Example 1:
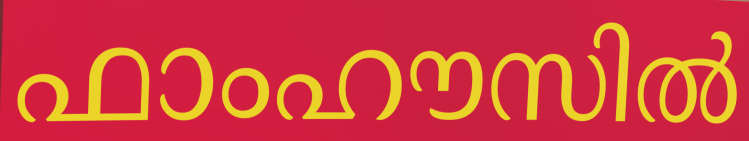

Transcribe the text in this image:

ഫാംഹൗസിൽ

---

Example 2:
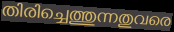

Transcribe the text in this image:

തിരിച്ചെത്തുന്നതുവരെ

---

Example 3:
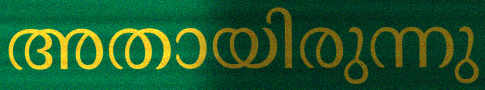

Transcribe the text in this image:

അതായിരുന്നു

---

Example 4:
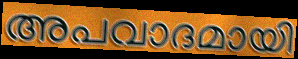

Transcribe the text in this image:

അപവാദമായി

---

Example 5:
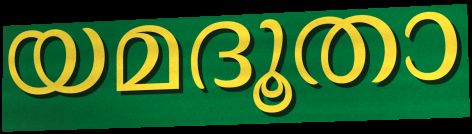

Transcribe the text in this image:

യമദൂതാ